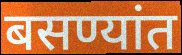
बसण्यांत